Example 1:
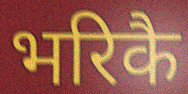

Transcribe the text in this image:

भरिकै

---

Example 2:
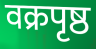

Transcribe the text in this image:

वक्रपृष्ठ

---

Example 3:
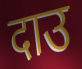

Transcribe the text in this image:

दाउ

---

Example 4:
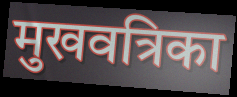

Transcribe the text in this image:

मुखवत्रिका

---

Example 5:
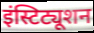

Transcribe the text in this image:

इंस्टिट्यूशन